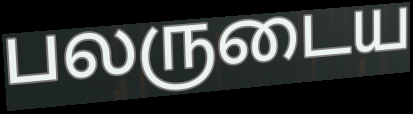
பலருடைய